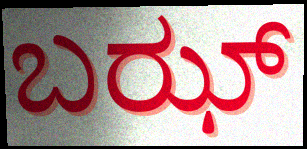
ಬಝ್